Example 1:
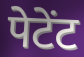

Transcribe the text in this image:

पेटेंट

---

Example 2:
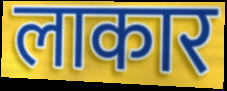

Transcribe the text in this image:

लाकार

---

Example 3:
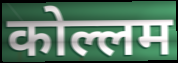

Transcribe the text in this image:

कोल्लम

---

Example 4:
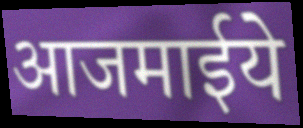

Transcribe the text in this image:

आजमाईये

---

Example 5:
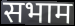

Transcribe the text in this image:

सभाम